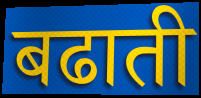
बढाती